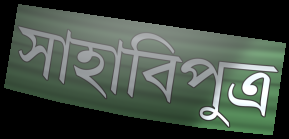
সাহাবিপুত্র